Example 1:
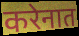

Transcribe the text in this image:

करेनात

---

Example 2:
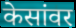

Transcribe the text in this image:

केसांवर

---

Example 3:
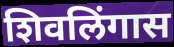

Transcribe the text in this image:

शिवलिंगास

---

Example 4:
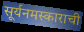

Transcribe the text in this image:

सूर्यनमस्काराची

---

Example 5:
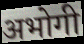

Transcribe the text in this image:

अभोगी